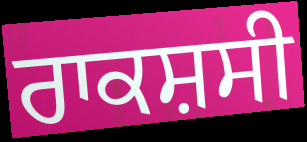
ਰਾਕਸ਼ਸੀ